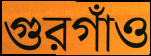
গুরগাঁও